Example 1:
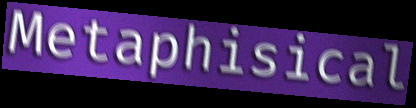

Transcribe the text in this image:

Metaphisical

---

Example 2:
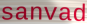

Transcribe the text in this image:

sanvad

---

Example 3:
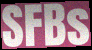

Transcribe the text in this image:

SFBs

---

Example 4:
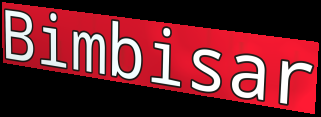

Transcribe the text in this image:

Bimbisar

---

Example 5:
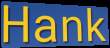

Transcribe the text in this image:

Hank